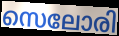
സെലോരി